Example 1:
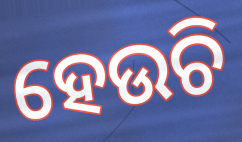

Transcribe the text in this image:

ହେଉଚି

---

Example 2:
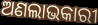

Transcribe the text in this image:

ଅଣଲାଭକାରୀ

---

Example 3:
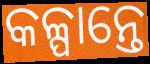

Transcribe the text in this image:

କଳ୍ପାନ୍ତେ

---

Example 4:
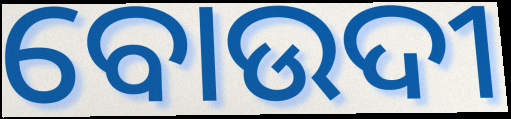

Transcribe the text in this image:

ବୋଉଦୀ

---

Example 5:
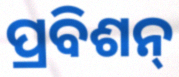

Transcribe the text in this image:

ପ୍ରବିଶନ୍